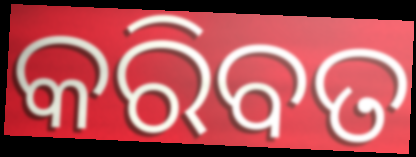
କରିବତ